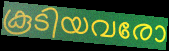
കൂടിയവരോ